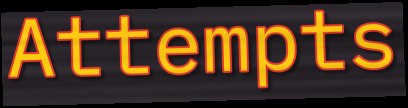
Attempts